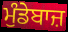
ਮੁੰਡੇਬਾਜ਼